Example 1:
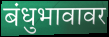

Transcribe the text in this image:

बंधुभावावर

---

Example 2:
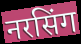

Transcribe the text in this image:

नरसिंग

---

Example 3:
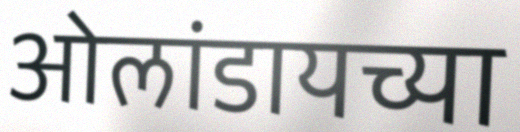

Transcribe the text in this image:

ओलांडायच्या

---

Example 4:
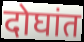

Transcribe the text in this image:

दोघांत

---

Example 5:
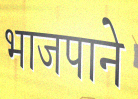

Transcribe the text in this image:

भाजपाने